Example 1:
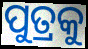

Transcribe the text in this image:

ପୁତ୍ରକୁ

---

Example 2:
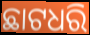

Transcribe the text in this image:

ଛାଟଧରି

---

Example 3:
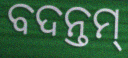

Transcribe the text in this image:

ବଦନ୍ତମ୍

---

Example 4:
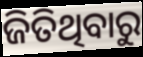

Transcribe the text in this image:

ଜିତିଥିବାରୁ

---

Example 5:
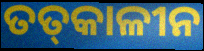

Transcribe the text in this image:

ତତ୍‌କାଳୀନ